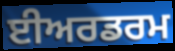
ਈਅਰਡਰਮ